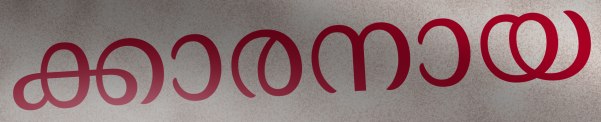
ക്കാരനായ